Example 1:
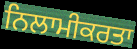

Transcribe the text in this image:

ਨਿਲਾਮੀਕਰਤਾ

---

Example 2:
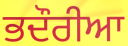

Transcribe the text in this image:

ਭਦੌਰੀਆ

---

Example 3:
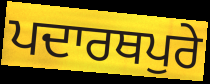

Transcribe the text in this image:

ਪਦਾਰਥਪੁਰੇ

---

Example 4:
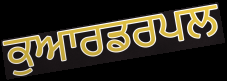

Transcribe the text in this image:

ਕੁਆਰਡਰਪਲ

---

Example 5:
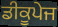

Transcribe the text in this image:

ਡੀਕੂਪੇਜ